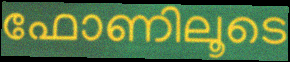
ഫോണിലൂടെ